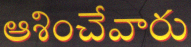
ఆశించేవారు